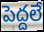
పెద్దలే